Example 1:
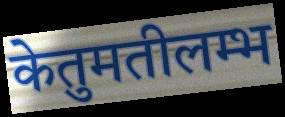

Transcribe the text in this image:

केतुमतीलम्भ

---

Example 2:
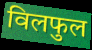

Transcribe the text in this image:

विलफुल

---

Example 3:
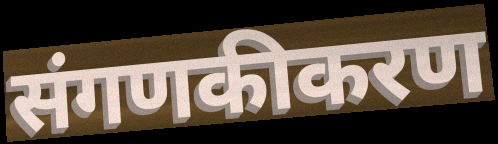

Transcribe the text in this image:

संगणकीकरण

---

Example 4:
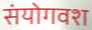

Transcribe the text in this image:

संयोगवश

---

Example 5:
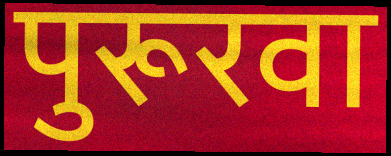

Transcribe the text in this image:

पुरूरवा